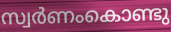
സ്വർണംകൊണ്ടു